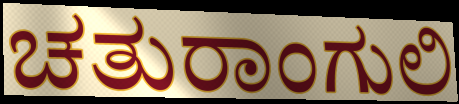
ಚತುರಾಂಗುಲಿ